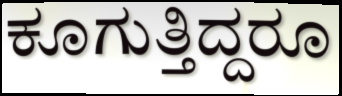
ಕೂಗುತ್ತಿದ್ದರೂ